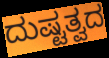
ದುಷ್ಟತ್ವದ